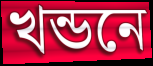
খন্ডনে